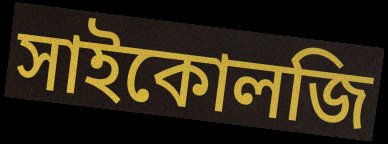
সাইকোলজি